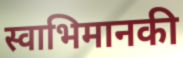
स्वाभिमानकी